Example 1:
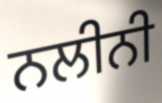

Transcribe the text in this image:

ਨਲੀਨੀ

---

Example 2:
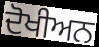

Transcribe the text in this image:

ਦੋਖੀਅਨ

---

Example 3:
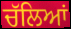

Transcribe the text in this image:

ਚੱਲਿਆਂ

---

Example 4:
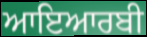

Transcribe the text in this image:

ਆਇਆਰਬੀ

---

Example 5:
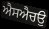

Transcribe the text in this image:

ਐਸਐਚਉ